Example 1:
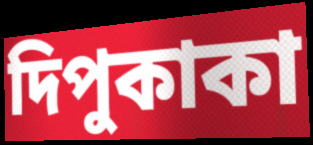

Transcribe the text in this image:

দিপুকাকা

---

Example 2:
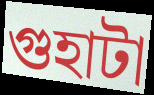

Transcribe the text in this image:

গুহাটা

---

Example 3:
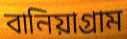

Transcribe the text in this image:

বানিয়াগ্রাম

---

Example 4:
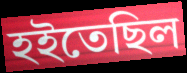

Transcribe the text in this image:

হইতেছিল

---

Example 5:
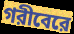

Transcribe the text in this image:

গরীবেরে